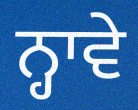
ਨ੍ਹਾਵੇ